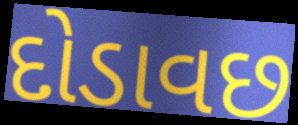
દોડાવછ